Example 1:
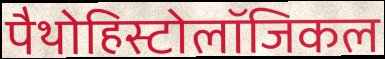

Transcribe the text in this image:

पैथोहिस्टोलॉजिकल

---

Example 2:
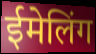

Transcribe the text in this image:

ईमेलिंग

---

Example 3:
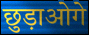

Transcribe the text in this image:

छुड़ाओगे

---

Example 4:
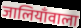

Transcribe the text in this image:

जालियाँवाला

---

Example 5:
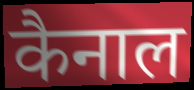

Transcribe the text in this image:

कैनाल